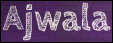
Ajwala